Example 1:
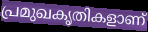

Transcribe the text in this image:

പ്രമുഖകൃതികളാണ്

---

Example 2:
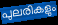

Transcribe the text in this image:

പുലരികളും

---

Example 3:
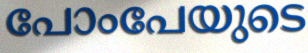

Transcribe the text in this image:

പോംപേയുടെ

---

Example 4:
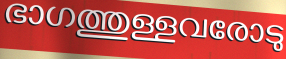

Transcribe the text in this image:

ഭാഗത്തുള്ളവരോടു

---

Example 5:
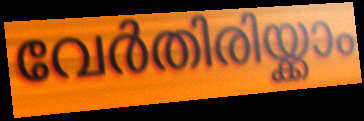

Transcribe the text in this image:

വേർതിരിയ്ക്കാം